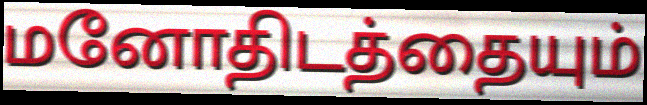
மனோதிடத்தையும்